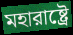
মহারাষ্ট্রে